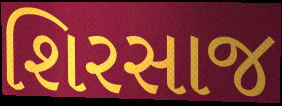
શિરસાજ